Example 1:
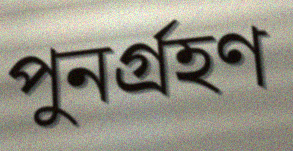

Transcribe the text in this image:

পুনর্গ্রহণ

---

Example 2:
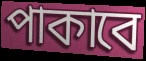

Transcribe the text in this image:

পাকাবে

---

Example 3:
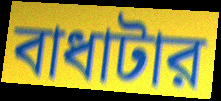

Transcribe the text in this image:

বাধাটার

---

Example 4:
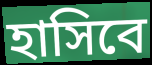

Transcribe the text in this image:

হাসিবে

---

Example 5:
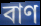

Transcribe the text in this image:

বাণ